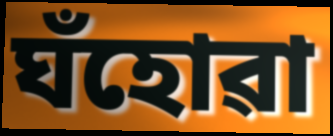
ঘঁহোৱা